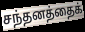
சந்தனத்தைக்